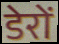
डेरों